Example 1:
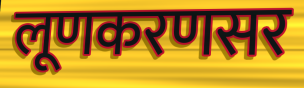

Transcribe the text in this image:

लूणकरणसर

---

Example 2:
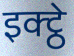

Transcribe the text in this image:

इक्ट्ठे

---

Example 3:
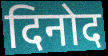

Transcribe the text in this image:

दिनोद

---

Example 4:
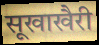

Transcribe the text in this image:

सूखाखैरी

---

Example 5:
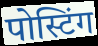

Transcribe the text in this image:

पोस्टिंग